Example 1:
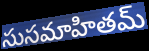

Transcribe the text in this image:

సుసమాహితమ్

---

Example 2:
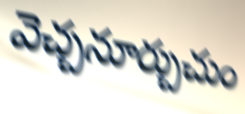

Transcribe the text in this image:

వెచ్చనూర్చుచుం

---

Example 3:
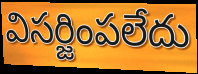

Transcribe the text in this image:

విసర్జింపలేదు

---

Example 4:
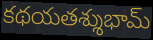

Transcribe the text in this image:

కథయతశ్శుభామ్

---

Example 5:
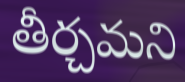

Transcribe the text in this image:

తీర్చమని